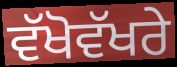
ਵੱਖੋਵੱਖਰੇ